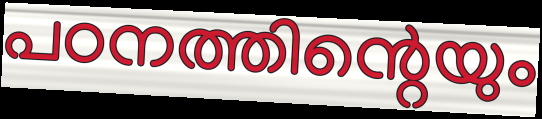
പഠനത്തിന്റെയും